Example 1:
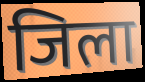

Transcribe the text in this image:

जिला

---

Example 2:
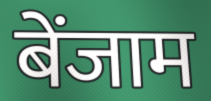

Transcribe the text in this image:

बेंजाम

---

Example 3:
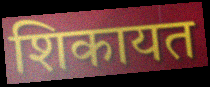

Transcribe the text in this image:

शिकायत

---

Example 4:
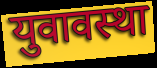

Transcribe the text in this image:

युवावस्था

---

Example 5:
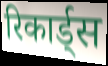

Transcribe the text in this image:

रिकार्ड्स